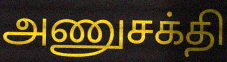
அணுசக்தி